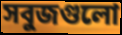
সবুজগুলো